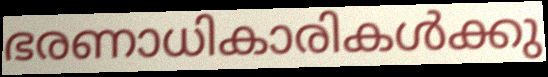
ഭരണാധികാരികൾക്കു